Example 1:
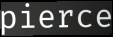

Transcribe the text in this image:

pierce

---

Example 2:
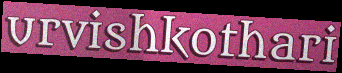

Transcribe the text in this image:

urvishkothari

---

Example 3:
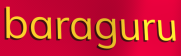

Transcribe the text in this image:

baraguru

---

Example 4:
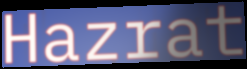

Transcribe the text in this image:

Hazrat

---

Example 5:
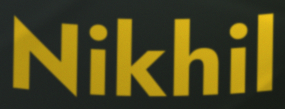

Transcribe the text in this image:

Nikhil